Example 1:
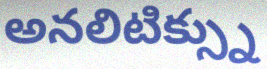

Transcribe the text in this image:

అనలిటిక్స్ను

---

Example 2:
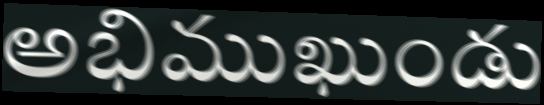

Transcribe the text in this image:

అభిముఖుండు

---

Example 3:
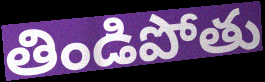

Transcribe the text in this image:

తిండిపోతు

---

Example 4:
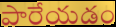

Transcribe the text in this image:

పారేయడం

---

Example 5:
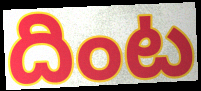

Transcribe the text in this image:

దింట